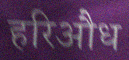
हरिऔध